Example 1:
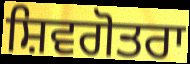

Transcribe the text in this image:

ਸ਼ਿਵਗੋਤਰਾ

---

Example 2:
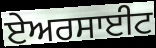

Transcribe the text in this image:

ਏਅਰਸਾਈਟ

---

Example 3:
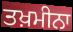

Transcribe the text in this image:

ਤਖ਼ਮੀਨਾ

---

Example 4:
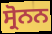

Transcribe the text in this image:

ਸ੍ਰੋਨਨ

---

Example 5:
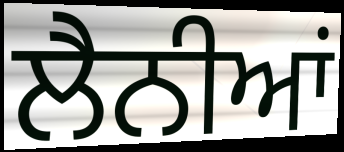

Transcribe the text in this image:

ਲੈਨੀਆਂ